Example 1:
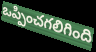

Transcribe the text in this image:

ఒప్పించగలిగింది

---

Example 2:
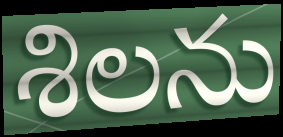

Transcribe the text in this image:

శిలను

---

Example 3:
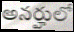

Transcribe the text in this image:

అనర్హులో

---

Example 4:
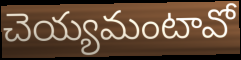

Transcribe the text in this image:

చెయ్యమంటావో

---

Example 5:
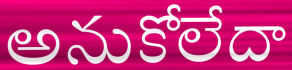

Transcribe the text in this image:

అనుకోలేదా